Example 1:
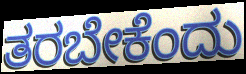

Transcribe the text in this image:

ತರಬೇಕೆಂದು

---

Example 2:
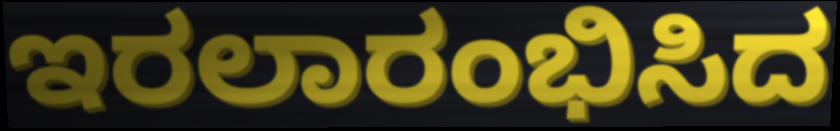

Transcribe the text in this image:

ಇರಲಾರಂಭಿಸಿದ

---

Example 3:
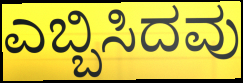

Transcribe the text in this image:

ಎಬ್ಬಿಸಿದವು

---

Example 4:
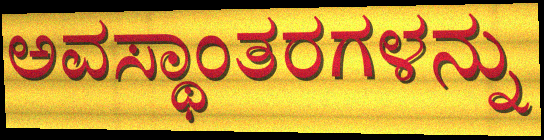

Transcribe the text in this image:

ಅವಸ್ಥಾಂತರಗಳನ್ನು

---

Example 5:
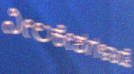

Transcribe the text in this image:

ನೀಲಕೇಶಗಳಾಡೆ